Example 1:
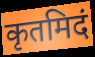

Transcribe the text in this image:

कृतमिदं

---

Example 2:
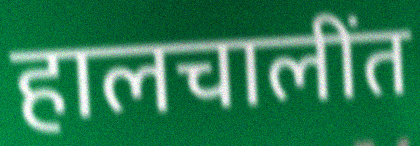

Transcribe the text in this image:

हालचालींत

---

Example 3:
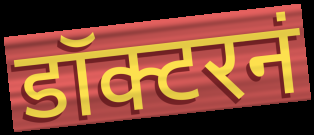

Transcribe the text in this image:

डॉक्टरनं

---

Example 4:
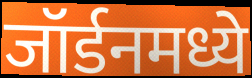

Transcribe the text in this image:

जॉर्डनमध्ये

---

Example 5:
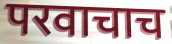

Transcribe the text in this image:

परवाचाच